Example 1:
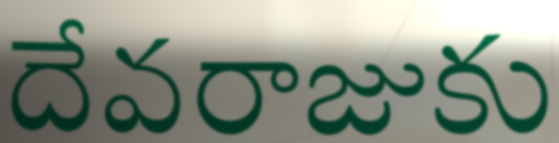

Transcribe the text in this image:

దేవరాజుకు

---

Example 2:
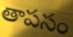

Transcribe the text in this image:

తాపసం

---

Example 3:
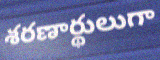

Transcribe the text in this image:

శరణార్థులుగా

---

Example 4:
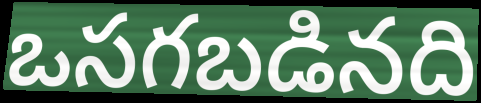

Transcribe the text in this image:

ఒసగబడినది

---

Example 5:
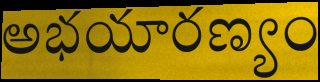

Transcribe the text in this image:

అభయారణ్యం